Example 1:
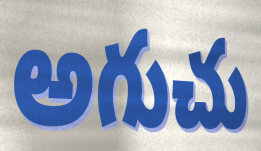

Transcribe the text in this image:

అగుచు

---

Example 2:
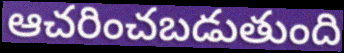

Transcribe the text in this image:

ఆచరించబడుతుంది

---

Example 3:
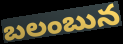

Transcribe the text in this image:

బలంబున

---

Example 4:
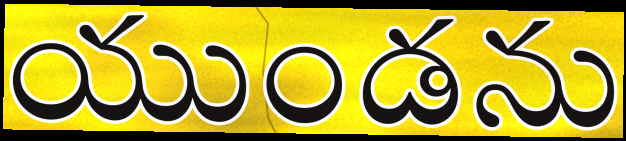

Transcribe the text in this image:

యుండను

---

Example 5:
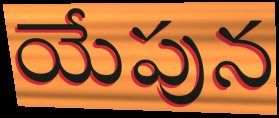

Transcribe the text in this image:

యేపున